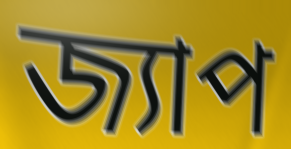
জ্যাপ